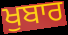
ਖੁਬਾਰ